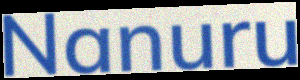
Nanuru